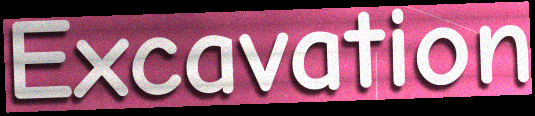
Excavation